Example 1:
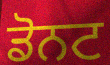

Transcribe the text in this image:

ਡੋਨਟ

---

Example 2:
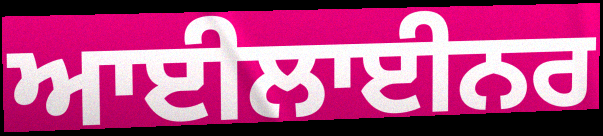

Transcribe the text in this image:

ਆਈਲਾਈਨਰ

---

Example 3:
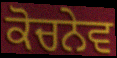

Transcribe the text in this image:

ਕੋਚਨੇਵ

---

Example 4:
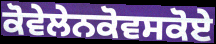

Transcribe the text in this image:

ਕੋਵੇਲੇਨਕੋਵਸਕੋਏ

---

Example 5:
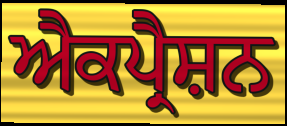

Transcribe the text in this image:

ਐਕਪ੍ਰੈਸ਼ਨ